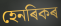
হেনৰিকৰ